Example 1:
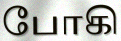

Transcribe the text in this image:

போகி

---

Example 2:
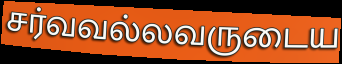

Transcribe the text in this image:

சர்வவல்லவருடைய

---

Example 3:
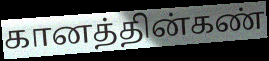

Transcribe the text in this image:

கானத்தின்கண்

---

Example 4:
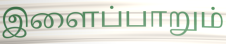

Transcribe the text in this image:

இளைப்பாறும்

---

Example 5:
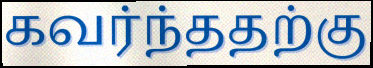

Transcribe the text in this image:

கவர்ந்ததற்கு